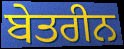
ਬੇਤਰੀਨ